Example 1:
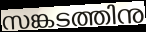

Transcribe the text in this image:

സങ്കടത്തിനു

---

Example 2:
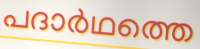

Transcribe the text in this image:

പദാർഥത്തെ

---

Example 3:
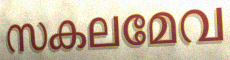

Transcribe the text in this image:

സകലമേവ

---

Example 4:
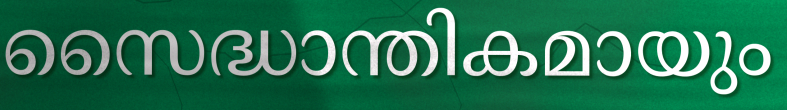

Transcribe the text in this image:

സൈദ്ധാന്തികമായും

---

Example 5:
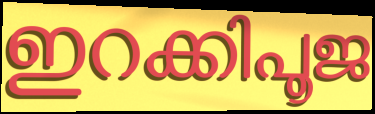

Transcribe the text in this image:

ഇറക്കിപൂജ